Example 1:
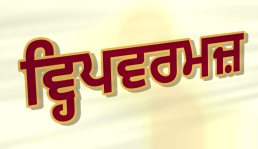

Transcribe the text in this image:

ਵ੍ਹਿਪਵਰਮਜ਼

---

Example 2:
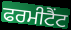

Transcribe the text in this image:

ਫਰਮੀਟੈਂਟ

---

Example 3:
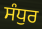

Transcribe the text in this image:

ਸੰਧੁਰ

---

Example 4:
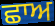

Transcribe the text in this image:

ਛਾਅ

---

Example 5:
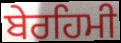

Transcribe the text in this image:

ਬੇਰਹਿਮੀ